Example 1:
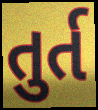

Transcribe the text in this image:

તુર્ત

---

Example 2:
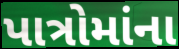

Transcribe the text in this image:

પાત્રોમાંના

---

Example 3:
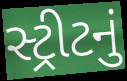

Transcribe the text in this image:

સ્ટ્રીટનું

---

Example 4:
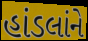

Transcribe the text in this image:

હાંડલાંને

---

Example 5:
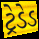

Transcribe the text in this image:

ટ્રેડેડ